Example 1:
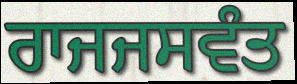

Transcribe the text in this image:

ਰਾਜਜਸਵੰਤ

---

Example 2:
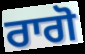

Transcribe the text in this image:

ਰਾਗੋ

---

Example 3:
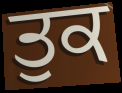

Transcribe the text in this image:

ਤੁਕ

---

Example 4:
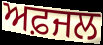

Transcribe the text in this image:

ਅਫ਼ਜਲ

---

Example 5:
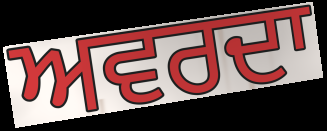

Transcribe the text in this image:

ਅਵਰਦਾ